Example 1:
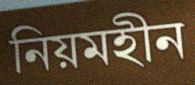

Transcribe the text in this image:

নিয়মহীন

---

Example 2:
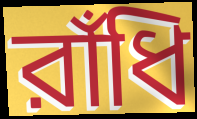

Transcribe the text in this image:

রাঁধি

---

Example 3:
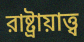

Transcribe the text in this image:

রাষ্ট্রায়াত্ত্ব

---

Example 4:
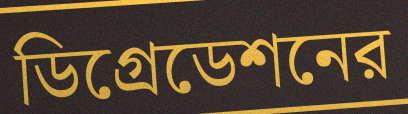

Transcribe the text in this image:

ডিগ্রেডেশনের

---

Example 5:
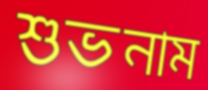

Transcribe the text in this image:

শুভনাম